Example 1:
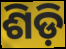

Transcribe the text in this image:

ଶିଡ଼ି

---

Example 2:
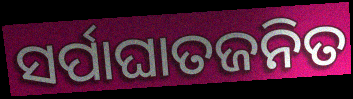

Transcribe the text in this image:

ସର୍ପାଘାତଜନିତ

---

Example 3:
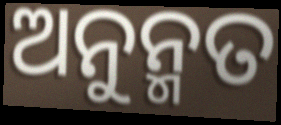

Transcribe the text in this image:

ଅନୁନ୍ମତ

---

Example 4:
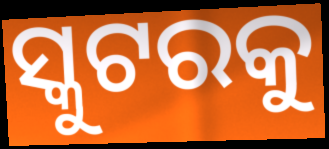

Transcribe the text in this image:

ସ୍କୁଟରକୁ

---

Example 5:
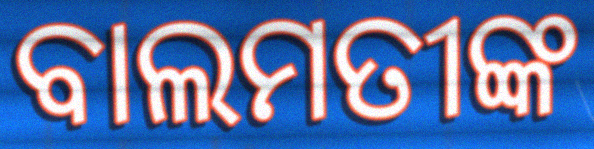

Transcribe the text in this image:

ବାଲମତୀଙ୍କ